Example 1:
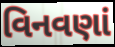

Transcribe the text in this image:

વિનવણાં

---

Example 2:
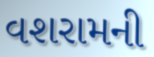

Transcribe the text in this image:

વશરામની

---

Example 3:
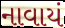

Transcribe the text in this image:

નાવાયં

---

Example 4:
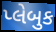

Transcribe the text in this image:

પ્લેબુક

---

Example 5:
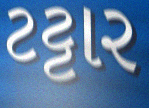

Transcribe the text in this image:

ટટ્ટાર